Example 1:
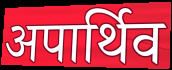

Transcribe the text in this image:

अपार्थिव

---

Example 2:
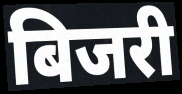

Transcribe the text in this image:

बिजरी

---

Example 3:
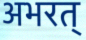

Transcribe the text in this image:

अभरत्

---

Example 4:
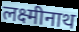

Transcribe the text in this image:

लक्ष्मीनाथ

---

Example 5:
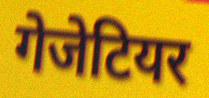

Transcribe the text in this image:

गेजेटियर